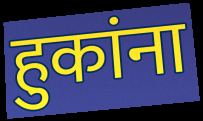
हुकांना